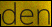
den